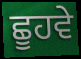
ਛੂਹਵੇ